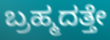
ಬ್ರಹ್ಮದತ್ತೇ